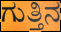
ಗುತ್ತಿನ